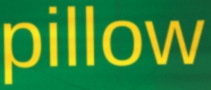
pillow